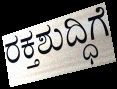
ರಕ್ತಶುದ್ಧಿಗೆ